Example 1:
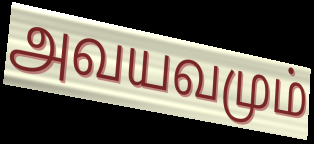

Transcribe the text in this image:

அவயவமும்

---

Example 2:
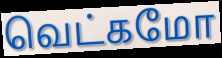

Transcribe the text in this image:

வெட்கமோ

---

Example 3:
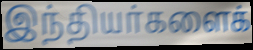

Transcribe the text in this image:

இந்தியர்களைக்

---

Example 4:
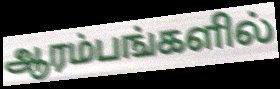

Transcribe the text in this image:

ஆரம்பங்களில்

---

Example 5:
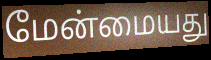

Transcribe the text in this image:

மேன்மையது